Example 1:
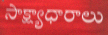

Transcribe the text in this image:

సాక్ష్యాధారాలు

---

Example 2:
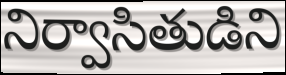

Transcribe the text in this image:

నిర్వాసితుడిని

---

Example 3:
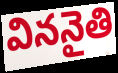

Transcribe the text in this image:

విననైతి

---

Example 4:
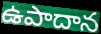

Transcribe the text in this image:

ఉపాదాన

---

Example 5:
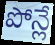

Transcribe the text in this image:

పోన్లే